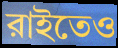
রাইতেও